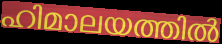
ഹിമാലയത്തിൽ